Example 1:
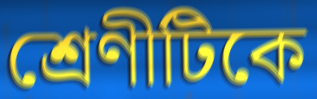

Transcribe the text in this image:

শ্রেণীটিকে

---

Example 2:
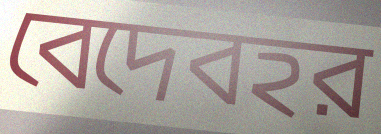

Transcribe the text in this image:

বেদেবহর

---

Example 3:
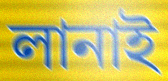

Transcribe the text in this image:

লানাই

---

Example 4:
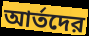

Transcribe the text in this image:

আর্তদের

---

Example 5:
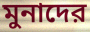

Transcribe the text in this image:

মুনাদের